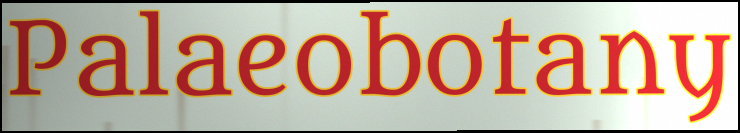
Palaeobotany